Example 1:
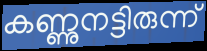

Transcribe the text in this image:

കണ്ണുനട്ടിരുന്ന്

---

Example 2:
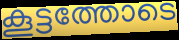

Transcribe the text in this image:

കൂട്ടത്തോടെ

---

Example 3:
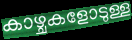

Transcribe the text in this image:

കാഴ്ചകളോടുള്ള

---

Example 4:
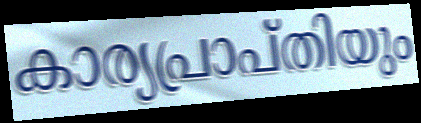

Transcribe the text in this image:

കാര്യപ്രാപ്തിയും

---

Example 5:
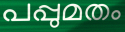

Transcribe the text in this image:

പപ്പുമതം